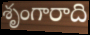
శృంగారాది